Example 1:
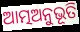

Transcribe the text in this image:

ଆତ୍ମଅନୁଭୂତି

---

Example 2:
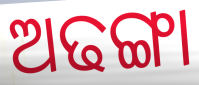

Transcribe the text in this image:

ଅଢଙ୍ଗା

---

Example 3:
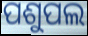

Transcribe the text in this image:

ପଶୁପଲ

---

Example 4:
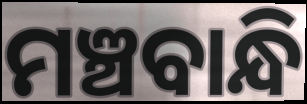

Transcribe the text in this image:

ମଞ୍ଚବାନ୍ଧି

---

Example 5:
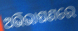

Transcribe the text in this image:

ଅଭିଭାଷଣରେ